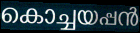
കൊച്ചയപ്പൻ